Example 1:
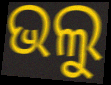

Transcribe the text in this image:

ଭଲୁ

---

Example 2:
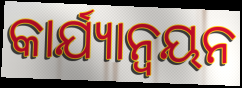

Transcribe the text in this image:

କାର୍ଯ୍ୟାନ୍ବୟନ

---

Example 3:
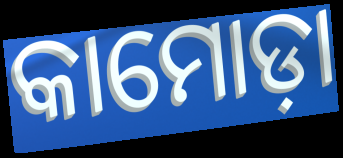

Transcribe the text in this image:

କାମୋଡ଼ା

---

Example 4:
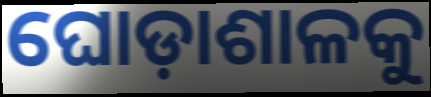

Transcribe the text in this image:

ଘୋଡ଼ାଶାଳକୁ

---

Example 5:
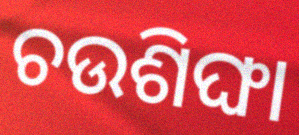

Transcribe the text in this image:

ଚଉଶିଙ୍ଘା